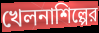
খেলনাশিল্পের